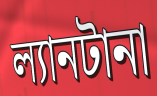
ল্যানটানা